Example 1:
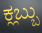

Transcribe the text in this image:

ಕ್ಲಬ್ಬು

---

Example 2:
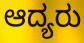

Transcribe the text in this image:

ಆದ್ಯರು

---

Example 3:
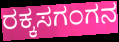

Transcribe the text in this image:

ರಕ್ಕಸಗಂಗನ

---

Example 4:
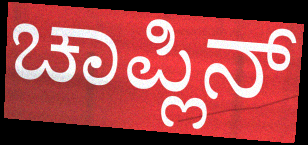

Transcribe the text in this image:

ಚಾಪ್ಲಿನ್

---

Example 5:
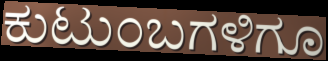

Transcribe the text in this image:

ಕುಟುಂಬಗಳಿಗೂ